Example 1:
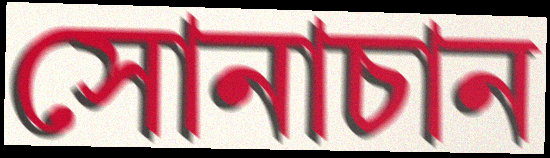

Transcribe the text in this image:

সোনাচান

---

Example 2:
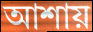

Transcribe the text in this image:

আশায়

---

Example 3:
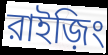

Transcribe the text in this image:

রাইজ়িং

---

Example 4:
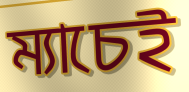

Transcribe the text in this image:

ম্যাচেই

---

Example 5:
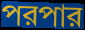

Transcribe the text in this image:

পরপার